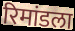
रिमांडला